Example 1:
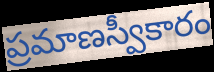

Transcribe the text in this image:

ప్రమాణస్వీకారం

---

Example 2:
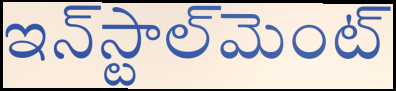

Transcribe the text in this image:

ఇన్‌స్టాల్‌మెంట్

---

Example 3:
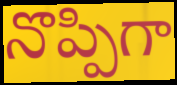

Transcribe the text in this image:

నొప్పిగా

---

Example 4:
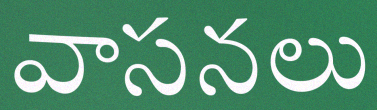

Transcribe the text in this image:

వాసనలు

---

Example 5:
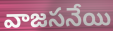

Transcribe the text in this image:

వాజసనేయి